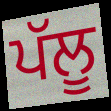
ਪੱਲੂ